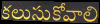
కలుసుకోవాలి